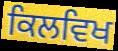
ਕਿਲਵਿਖ